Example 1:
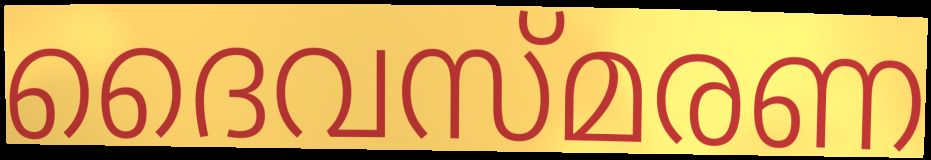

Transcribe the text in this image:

ദൈവസ്മരണ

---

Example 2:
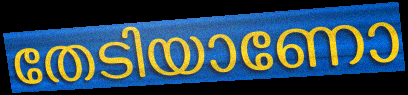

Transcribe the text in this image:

തേടിയാണോ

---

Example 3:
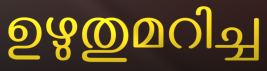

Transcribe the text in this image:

ഉഴുതുമറിച്ച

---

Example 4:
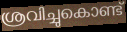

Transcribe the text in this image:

ശ്രവിച്ചുകൊണ്ട്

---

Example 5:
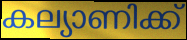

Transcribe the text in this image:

കല്യാണിക്ക്